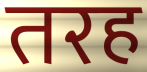
तरह